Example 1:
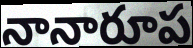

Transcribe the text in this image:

నానారూప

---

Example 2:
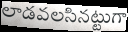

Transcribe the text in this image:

లాడవలసినట్టుగా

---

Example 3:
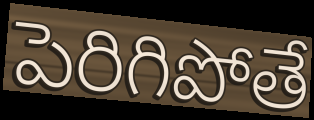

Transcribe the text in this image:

పెరిగిపోతే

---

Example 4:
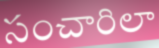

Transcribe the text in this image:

సంచారిలా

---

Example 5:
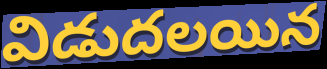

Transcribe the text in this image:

విడుదలయిన